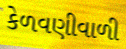
કેળવણીવાળી